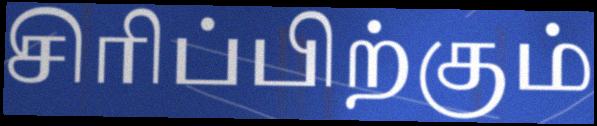
சிரிப்பிற்கும்